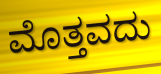
ಮೊತ್ತವದು